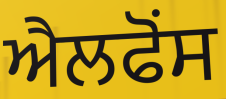
ਐਲਫੋਂਸ